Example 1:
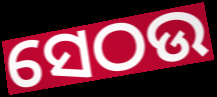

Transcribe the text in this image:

ସେଠଉ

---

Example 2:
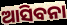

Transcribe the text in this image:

ଆସିବନା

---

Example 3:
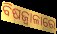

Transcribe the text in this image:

ବିଷଜ୍ୱାଳାରେ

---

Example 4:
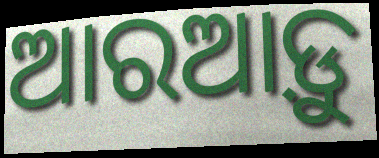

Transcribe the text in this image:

ଆରଆଡ଼ୁ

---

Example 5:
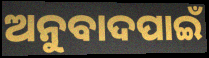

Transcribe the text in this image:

ଅନୁବାଦପାଇଁ